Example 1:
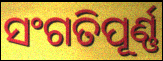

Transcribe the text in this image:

ସଂଗତିପୂର୍ଣ୍ଣ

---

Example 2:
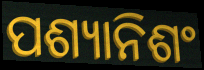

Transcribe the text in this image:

ପଶ୍ୟାନିଶଂ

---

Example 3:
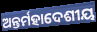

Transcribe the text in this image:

ଅନ୍ତର୍ମହାଦେଶୀୟ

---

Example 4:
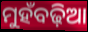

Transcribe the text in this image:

ମୁହଁବଢ଼ିଆ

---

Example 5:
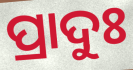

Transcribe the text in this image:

ପ୍ରାଦୁଃ